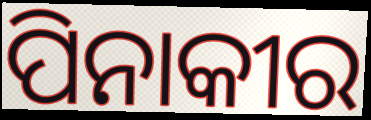
ପିନାକୀର